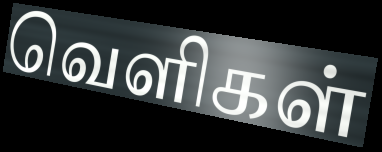
வெளிகள்